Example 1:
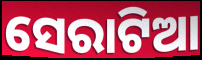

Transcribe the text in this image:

ସେରାଟିଆ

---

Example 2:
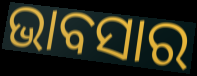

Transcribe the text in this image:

ଭାବସାର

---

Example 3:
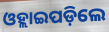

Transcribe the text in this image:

ଓହ୍ଲାଇପଡ଼ିଲେ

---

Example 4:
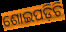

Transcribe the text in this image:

ଶୋଇପଡ଼ିଚି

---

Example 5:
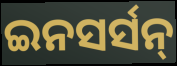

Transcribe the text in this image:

ଇନସର୍ସନ୍